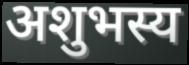
अशुभस्य